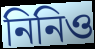
নিনিও